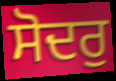
ਸੋਦਰੁ